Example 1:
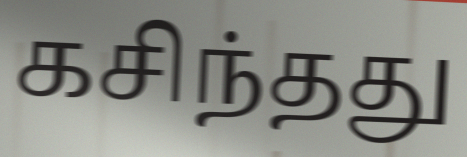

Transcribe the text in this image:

கசிந்தது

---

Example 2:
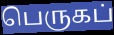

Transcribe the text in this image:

பெருகப்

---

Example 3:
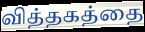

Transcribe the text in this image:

வித்தகத்தை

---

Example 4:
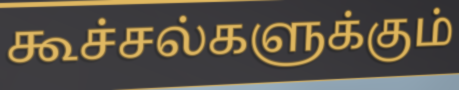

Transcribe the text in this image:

கூச்சல்களுக்கும்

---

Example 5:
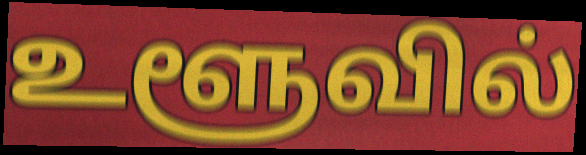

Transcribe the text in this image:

உளூவில்